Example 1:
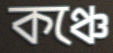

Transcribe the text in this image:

কঞ্চে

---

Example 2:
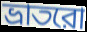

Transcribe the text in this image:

ভ্রাতরো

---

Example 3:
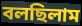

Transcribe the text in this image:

বলছিলাম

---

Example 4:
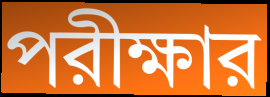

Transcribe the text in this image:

পরীক্ষার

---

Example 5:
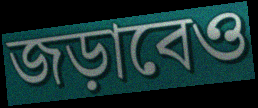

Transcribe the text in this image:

জড়াবেও